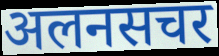
अलनसचर